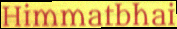
Himmatbhai